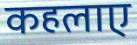
कहलाए